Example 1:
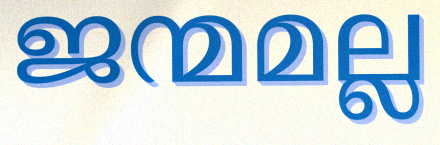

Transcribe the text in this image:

ജന്മമല്ല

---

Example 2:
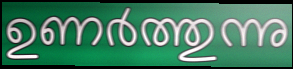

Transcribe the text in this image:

ഉണർത്തുന്നു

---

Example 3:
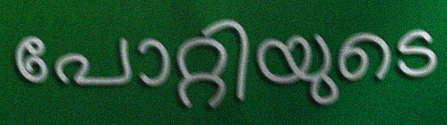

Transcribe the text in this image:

പോറ്റിയുടെ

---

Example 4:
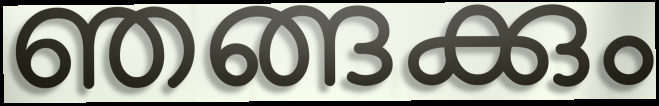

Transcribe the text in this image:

ഞങ്ങക്കും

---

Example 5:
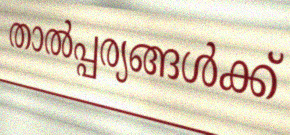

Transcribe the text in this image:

താൽപ്പര്യങ്ങൾക്ക്